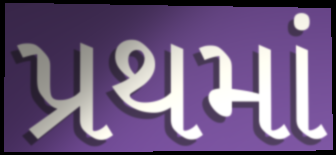
પ્રથમાં